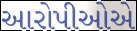
આરોપીઓએ